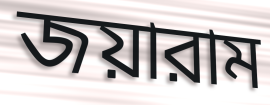
জয়ারাম